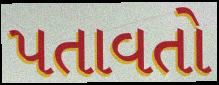
પતાવતો